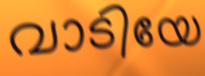
വാടിയേ